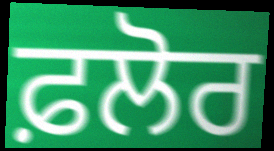
ਫ਼ਲੋਰ